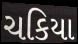
ચકિયા